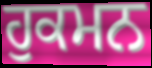
ਹੁਕਮਨ